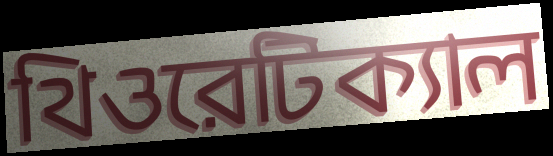
থিওরেটিক্যাল